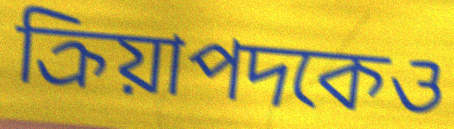
ক্রিয়াপদকেও